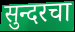
सुन्दरचा